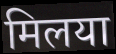
मिलया